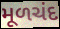
મૂળચંદ